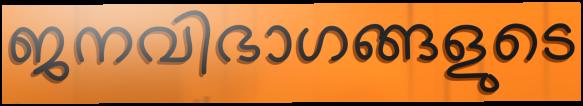
ജനവിഭാഗങ്ങളുടെ